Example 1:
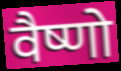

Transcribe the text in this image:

वैष्‍णो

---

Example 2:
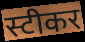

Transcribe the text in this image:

स्टीकर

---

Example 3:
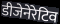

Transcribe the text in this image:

डीजेनेरेटिव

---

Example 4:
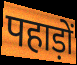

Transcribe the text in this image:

पहाड़ों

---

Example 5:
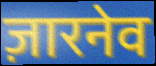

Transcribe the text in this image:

ज़ारनेव